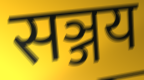
सञ्जय